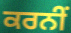
ਕਰਨੀਂ